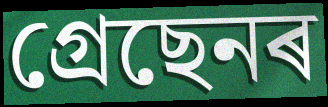
গ্ৰেছেনৰ